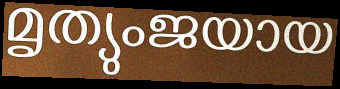
മൃത്യുംജയായ